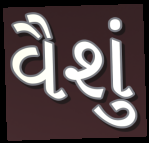
વૈશું